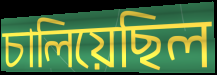
চালিয়েছিল